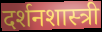
दर्शनशास्त्री